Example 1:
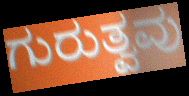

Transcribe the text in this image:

ಗುರುತ್ವವು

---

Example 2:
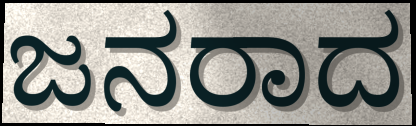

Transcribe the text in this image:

ಜನರಾದ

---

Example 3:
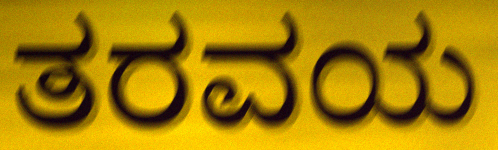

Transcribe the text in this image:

ತರವಯ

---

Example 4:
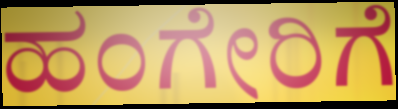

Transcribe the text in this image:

ಹಂಗೇರಿಗೆ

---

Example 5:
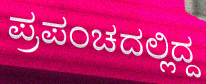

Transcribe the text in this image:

ಪ್ರಪಂಚದಲ್ಲಿದ್ದ